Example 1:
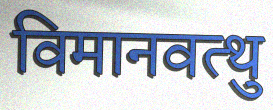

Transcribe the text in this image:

विमानवत्थु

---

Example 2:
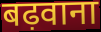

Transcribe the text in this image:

बढ़वाना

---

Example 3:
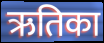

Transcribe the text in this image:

ऋतिका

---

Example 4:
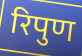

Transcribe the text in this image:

रिपुण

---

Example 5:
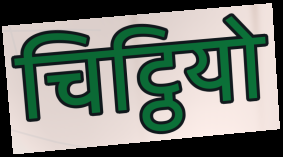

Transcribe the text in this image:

चिट्ठियो